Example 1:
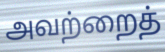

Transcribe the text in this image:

அவற்றைத்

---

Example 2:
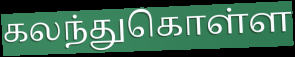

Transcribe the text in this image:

கலந்துகொள்ள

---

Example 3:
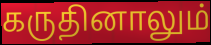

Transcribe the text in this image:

கருதினாலும்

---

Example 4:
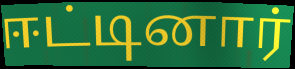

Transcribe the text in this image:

ஈட்டினார்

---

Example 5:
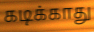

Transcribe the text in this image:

கடிக்காது